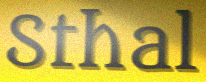
Sthal